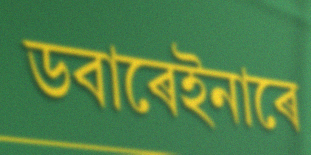
ডবাৰেইনাৰে